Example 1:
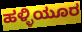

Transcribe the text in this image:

ಹಳ್ಳಿಯೂರ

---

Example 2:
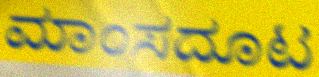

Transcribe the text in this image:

ಮಾಂಸದೂಟ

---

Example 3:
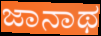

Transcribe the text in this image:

ಜಾನಾಥ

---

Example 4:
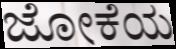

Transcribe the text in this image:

ಜೋಕೆಯ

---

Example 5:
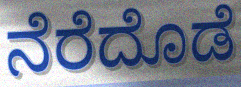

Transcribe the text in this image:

ನೆರೆದೊಡೆ